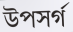
উপসৰ্গ